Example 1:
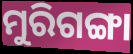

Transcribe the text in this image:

ମୁରିଗଙ୍ଗା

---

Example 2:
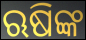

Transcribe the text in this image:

ଋଷିଙ୍କ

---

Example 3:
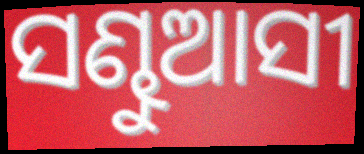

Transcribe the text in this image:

ସଣ୍ଢୁଆସୀ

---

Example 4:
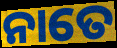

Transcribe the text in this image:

ନାତେ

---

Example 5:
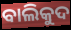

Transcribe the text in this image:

ବାଲିକୁଦ